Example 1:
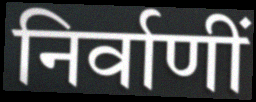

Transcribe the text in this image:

निर्वाणीं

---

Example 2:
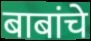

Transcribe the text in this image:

बाबांचे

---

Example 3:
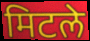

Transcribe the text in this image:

मिटले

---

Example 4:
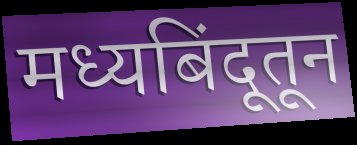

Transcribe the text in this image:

मध्यबिंदूतून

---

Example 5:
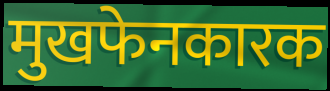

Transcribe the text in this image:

मुखफेनकारक